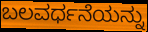
ಬಲವರ್ಧನೆಯನ್ನು